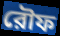
রৌফ